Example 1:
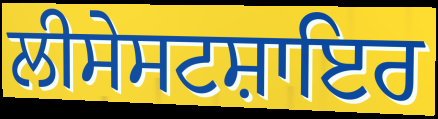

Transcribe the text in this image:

ਲੀਸੇਸਟਸ਼ਾਇਰ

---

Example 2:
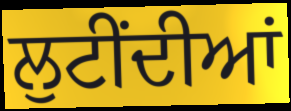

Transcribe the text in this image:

ਲੁਟੀਂਦੀਆਂ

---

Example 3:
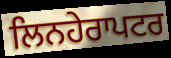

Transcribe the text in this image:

ਲਿਨਹੇਰਾਪਟਰ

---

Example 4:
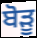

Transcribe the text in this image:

ਬੋੜੂ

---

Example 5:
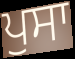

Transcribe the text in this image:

ਪੁਸਾ